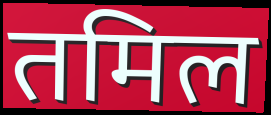
तमिल